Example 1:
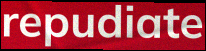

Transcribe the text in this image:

repudiate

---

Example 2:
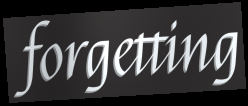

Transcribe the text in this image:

forgetting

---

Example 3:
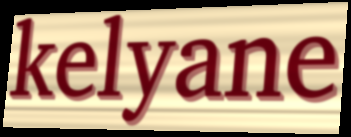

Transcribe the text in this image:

kelyane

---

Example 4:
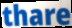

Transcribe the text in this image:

thare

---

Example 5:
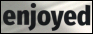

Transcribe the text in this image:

enjoyed